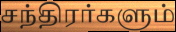
சந்திரர்களும்